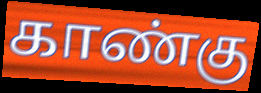
காண்கு